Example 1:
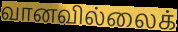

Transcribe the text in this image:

வானவில்லைக்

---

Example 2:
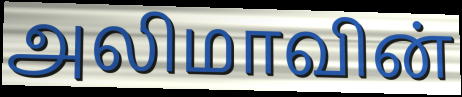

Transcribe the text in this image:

அலிமாவின்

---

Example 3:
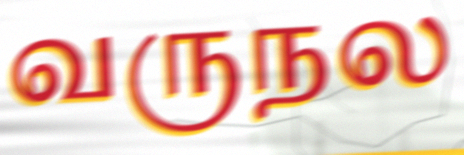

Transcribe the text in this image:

வருநல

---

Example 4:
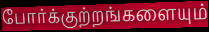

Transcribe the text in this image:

போர்க்குற்றங்களையும்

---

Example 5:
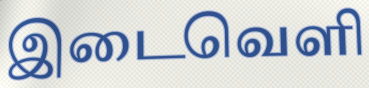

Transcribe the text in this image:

இடைவெளி